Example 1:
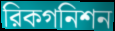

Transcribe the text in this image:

রিকগনিশন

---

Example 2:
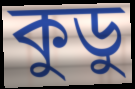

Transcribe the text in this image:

কুডু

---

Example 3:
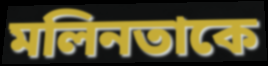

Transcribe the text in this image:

মলিনতাকে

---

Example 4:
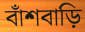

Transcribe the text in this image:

বাঁশবাড়ি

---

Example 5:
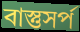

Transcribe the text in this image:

বাস্তুসর্প